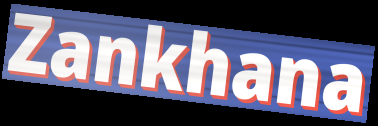
Zankhana